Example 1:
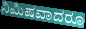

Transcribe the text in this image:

ನಿಮಿಷವಾದರೂ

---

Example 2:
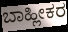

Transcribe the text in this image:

ಬಾಹ್ಲೀಕರ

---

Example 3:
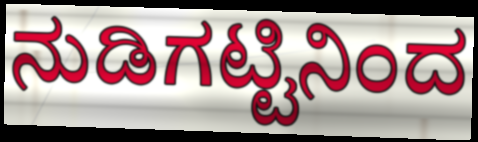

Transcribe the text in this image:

ನುಡಿಗಟ್ಟಿನಿಂದ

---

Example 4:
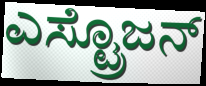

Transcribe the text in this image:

ಎಸ್ಟ್ರೊಜನ್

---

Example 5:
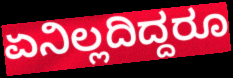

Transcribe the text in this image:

ಏನಿಲ್ಲದಿದ್ದರೂ